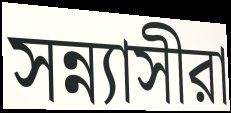
সন্ন্যাসীরা